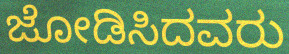
ಜೋಡಿಸಿದವರು